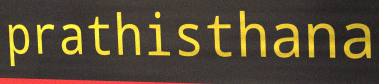
prathisthana